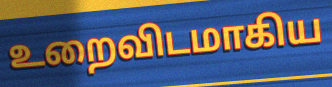
உறைவிடமாகிய